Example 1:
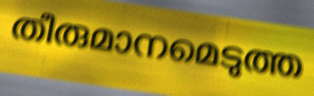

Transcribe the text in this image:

തീരുമാനമെടുത്ത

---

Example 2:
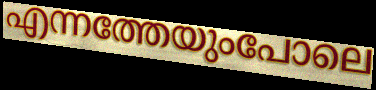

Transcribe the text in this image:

എന്നത്തേയുംപോലെ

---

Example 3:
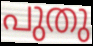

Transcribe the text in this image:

പുതു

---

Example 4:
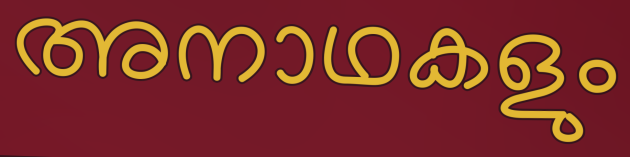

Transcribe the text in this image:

അനാഥകളും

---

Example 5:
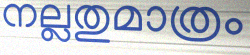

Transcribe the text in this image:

നല്ലതുമാത്രം